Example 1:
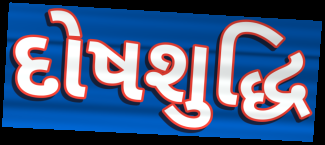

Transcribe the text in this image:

દોષશુદ્ધિ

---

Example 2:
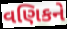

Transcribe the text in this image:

વણિકને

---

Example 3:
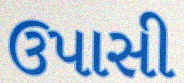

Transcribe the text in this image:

ઉપાસી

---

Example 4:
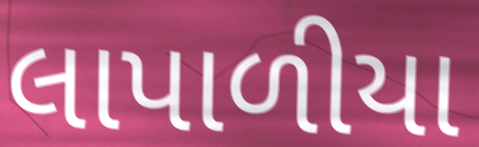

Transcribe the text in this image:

લાપાળીયા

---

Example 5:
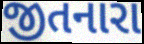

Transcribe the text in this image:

જીતનારા